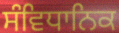
ਸੰਵਿਧਾਨਿਕ